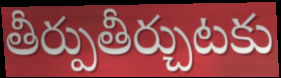
తీర్పుతీర్చుటకు